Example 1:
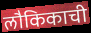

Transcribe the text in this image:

लौकिकाची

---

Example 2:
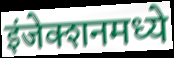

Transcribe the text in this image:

इंजेक्शनमध्ये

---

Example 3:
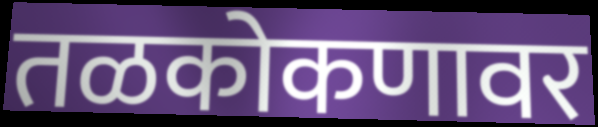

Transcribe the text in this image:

तळकोकणावर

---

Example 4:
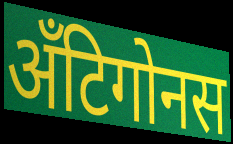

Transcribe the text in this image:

अँटिगोनस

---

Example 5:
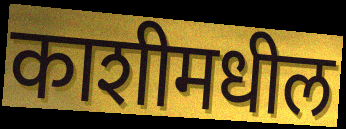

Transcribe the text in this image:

काशीमधील